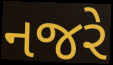
નજરે